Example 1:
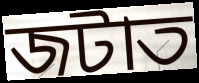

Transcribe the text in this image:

জটাত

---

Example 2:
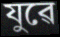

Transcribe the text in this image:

যুৱে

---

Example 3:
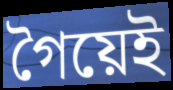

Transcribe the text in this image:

গৈয়েই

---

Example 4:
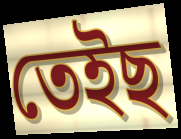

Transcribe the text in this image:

তেইছ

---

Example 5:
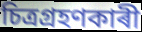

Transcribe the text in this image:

চিত্ৰগ্ৰহণকাৰী